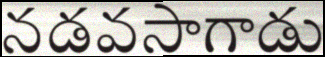
నడవసాగాడు